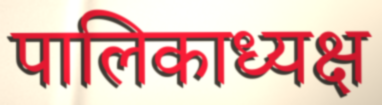
पालिकाध्यक्ष